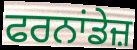
ਫਰਨਾਂਡੇਜ਼